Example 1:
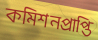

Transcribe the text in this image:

কমিশনপ্রাপ্তি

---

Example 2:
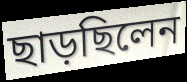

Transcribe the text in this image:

ছাড়ছিলেন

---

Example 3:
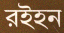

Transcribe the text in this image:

রইহন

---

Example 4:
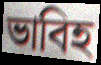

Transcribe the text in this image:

ভাবিহ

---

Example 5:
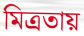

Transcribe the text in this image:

মিত্রতায়